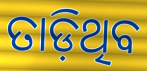
ତାଡ଼ିଥିବ